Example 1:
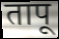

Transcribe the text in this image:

तापू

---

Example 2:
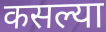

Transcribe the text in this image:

कसल्या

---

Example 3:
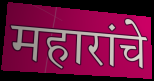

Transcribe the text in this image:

महारांचे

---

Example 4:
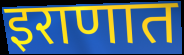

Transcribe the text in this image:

इराणात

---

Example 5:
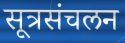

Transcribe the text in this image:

सूत्रसंचलन